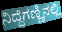
ನಿದ್ದೆಗಣ್ಣಿನಲ್ಲಿ